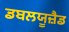
ਡਬਲਯੂਜ਼ੈਡ